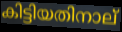
കിട്ടിയതിനാല്